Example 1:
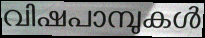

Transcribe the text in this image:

വിഷപാമ്പുകൾ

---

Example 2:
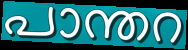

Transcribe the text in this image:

പാന്തറ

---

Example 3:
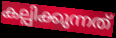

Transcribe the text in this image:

കല്പിക്കുന്നത്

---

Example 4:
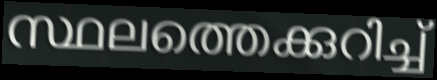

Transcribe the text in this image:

സ്ഥലത്തെക്കുറിച്ച്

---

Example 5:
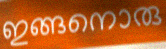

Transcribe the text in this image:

ഇങ്ങനൊരു